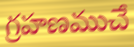
గ్రహణముచే